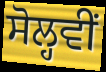
ਸੋਲ੍ਹਵੀਂ